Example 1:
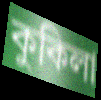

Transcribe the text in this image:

কুকিলা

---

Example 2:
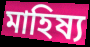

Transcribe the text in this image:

মাহিষ্য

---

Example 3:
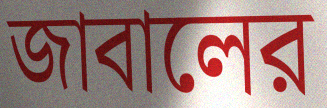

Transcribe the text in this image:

জাবালের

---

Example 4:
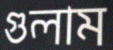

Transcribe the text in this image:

গুলাম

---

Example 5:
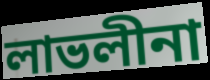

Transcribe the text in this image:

লাভলীনা